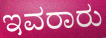
ಇವರಾರು